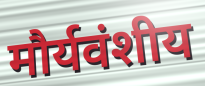
मौर्यवंशीय